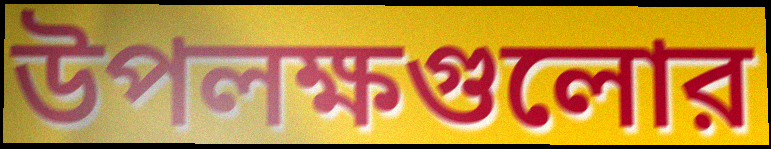
উপলক্ষগুলোর